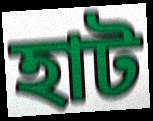
হাট